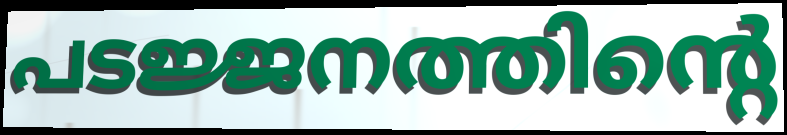
പടജ്ജനത്തിന്റെ